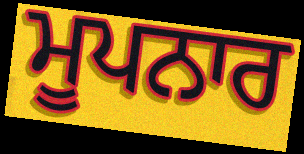
ਮੂਪਨਾਰ